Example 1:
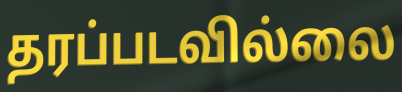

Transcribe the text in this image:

தரப்படவில்லை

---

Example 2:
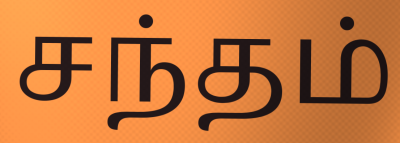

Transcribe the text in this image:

சந்தம்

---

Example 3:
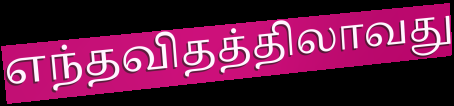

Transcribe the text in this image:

எந்தவிதத்திலாவது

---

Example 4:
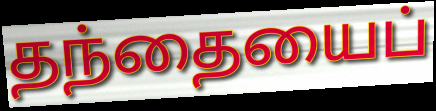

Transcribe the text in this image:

தந்தையைப்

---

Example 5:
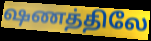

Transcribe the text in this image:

ஷணத்திலே